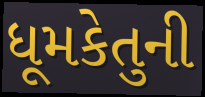
ધૂમકેતુની